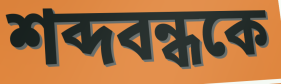
শব্দবন্ধকে